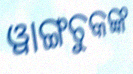
ୱାଙ୍ଗଚୁକଙ୍କ